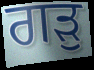
ਗੜੁ